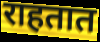
राहतात